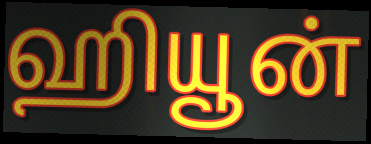
ஹியூன்